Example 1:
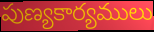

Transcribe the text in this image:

పుణ్యకార్యములు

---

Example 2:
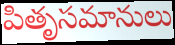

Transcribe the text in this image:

పితృసమానులు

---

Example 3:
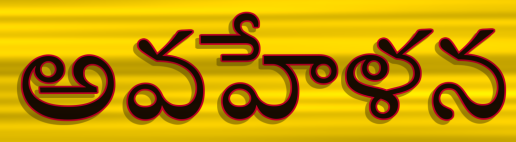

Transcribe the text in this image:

అవహేళన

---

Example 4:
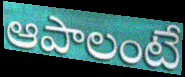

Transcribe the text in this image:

ఆపాలంటే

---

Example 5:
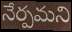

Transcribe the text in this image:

నేర్పమని